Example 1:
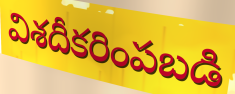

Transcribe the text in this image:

విశదీకరింపబడి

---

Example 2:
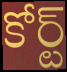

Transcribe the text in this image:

కోర్ట్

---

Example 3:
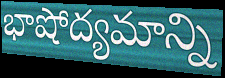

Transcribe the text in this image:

భాషోద్యమాన్ని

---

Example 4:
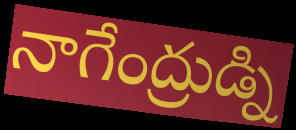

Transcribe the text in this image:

నాగేంద్రుడ్ని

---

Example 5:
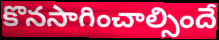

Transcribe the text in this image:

కొనసాగించాల్సిందే